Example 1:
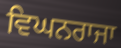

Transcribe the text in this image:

ਵਿਘਨਰਾਜਾ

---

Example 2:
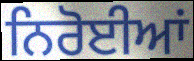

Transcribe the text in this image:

ਨਿਰੋਈਆਂ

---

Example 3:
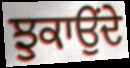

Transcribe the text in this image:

ਝੁਕਾਉੰਦੇ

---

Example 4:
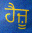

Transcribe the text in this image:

ਹੈਜ਼ੂ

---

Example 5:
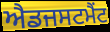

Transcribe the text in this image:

ਐਡਜਸਟਮੈਂਟ